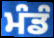
ਮੰਡੰ